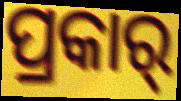
ପ୍ରକାର୍